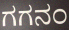
ಗಗನಂ